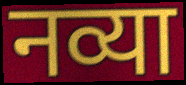
नव्‍या